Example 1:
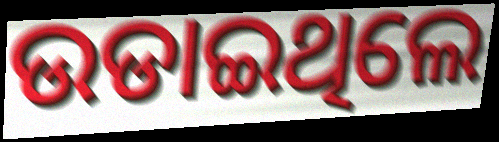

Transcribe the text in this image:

ଉଡାଇଥିଲେ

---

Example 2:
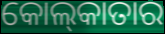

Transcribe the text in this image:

କୋଲ୍‌କାତାର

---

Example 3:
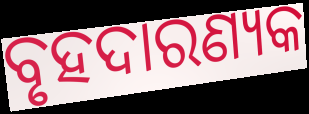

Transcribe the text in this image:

ବୃହଦାରଣ୍ୟକ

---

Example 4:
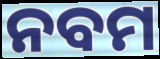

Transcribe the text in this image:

ନବମ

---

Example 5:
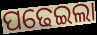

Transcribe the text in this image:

ପଢେଇଲା